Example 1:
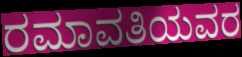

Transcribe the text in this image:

ರಮಾವತಿಯವರ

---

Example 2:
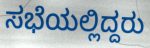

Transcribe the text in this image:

ಸಭೆಯಲ್ಲಿದ್ದರು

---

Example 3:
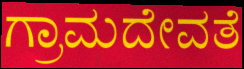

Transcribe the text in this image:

ಗ್ರಾಮದೇವತೆ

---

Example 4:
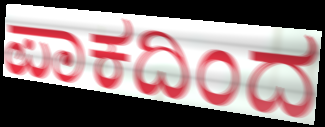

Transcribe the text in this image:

ಪಾಕದಿಂದ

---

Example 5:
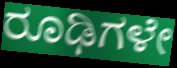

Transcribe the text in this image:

ರೂಢಿಗಳೇ